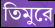
তিমুরে